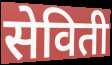
सेविती